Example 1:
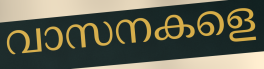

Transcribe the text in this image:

വാസനകളെ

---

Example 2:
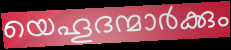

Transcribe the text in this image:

യെഹൂദന്മാർക്കും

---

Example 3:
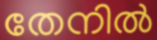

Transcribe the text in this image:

തേനിൽ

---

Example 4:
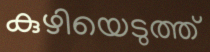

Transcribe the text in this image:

കുഴിയെടുത്ത്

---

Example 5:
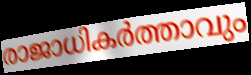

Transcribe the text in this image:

രാജാധികർത്താവും